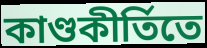
কাণ্ডকীর্তিতে